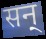
सन्